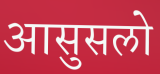
आसुसलो